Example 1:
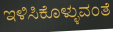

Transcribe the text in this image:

ಇಳಿಸಿಕೊಳ್ಳುವಂತೆ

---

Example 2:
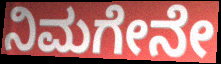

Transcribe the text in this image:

ನಿಮಗೇನೇ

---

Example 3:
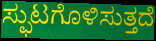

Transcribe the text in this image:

ಸ್ಫುಟಗೊಳಿಸುತ್ತದೆ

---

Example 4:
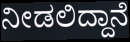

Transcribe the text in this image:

ನೀಡಲಿದ್ದಾನೆ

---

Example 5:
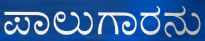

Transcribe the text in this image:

ಪಾಲುಗಾರನು